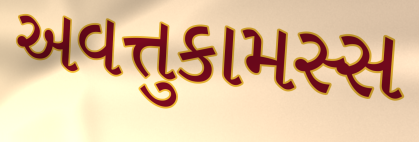
અવત્તુકામસ્સ